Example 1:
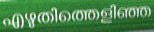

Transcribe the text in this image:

എഴുതിത്തെളിഞ്ഞ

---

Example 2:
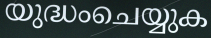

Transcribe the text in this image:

യുദ്ധംചെയ്യുക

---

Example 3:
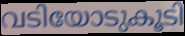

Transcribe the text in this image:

വടിയോടുകൂടി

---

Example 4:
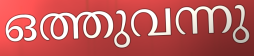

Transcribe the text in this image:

ഒത്തുവന്നു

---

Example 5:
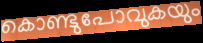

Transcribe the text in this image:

കൊണ്ടുപോവുകയും